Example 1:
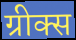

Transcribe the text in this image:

ग्रीक्स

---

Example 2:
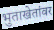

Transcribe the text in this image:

भुताखेतांवर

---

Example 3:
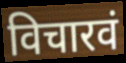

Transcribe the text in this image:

विचारवं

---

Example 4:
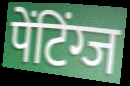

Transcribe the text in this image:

पेंटिंग्ज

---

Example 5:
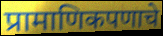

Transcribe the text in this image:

प्रामाणिकपणाचे